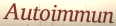
Autoimmun